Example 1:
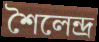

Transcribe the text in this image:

শৈলেন্দ্ৰ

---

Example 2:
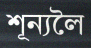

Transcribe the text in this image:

শূন্যলৈ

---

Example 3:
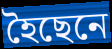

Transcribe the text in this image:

হৈছেনে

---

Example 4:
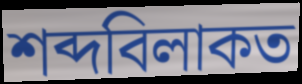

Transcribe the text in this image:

শব্দবিলাকত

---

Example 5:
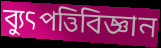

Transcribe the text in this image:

ব্যুৎপত্তিবিজ্ঞান